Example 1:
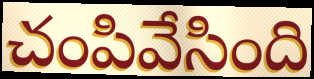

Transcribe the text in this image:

చంపివేసింది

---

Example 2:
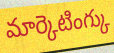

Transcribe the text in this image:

మార్కెటింగ్కు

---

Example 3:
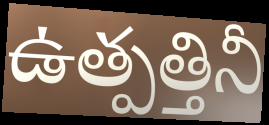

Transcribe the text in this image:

ఉత్పత్తినీ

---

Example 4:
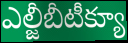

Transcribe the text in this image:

ఎల్జీబీటీక్యూ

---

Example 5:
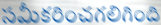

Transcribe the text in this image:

సమీకరించగలిగింది